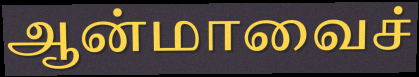
ஆன்மாவைச்